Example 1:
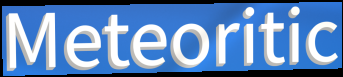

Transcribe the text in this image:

Meteoritic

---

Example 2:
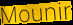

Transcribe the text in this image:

Mounir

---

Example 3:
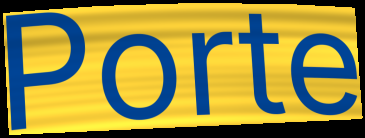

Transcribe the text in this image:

Porte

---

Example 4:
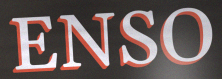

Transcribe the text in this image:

ENSO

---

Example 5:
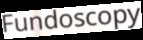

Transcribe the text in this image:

Fundoscopy